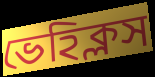
ভেহিক্লস